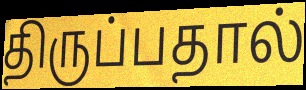
திருப்பதால்